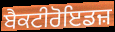
ਬੈਕਟੀਰੋਇਡਜ਼